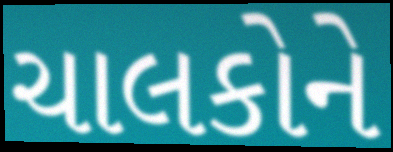
ચાલકોને